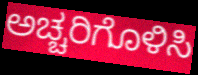
ಅಚ್ಚರಿಗೊಳಿಸಿ